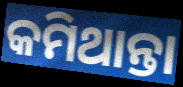
କମିଥାନ୍ତା